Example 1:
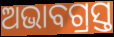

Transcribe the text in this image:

ଅଭାବଗ୍ରସ୍ତ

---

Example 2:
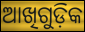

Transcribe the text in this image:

ଆଖିଗୁଡ଼ିକ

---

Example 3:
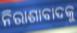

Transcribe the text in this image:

ନିରାଶାବାଦକୁ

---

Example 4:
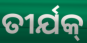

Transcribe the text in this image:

ତୀର୍ଯକ୍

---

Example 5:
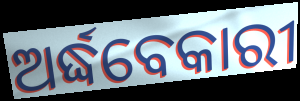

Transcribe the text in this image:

ଅର୍ଦ୍ଧବେକାରୀ